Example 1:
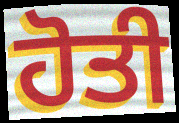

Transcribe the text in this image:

ਹੋਤੀ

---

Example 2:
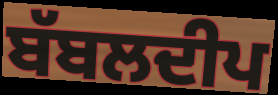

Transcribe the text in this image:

ਬੱਬਲਦੀਪ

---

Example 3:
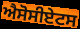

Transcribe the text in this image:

ਐਸੋਸੀਏਟਸ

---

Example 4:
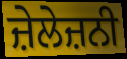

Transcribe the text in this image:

ਜ਼ੇਲੇਜ਼ਨੀ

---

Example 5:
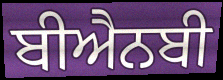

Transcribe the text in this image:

ਬੀਐਨਬੀ